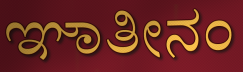
ಞಾತೀನಂ